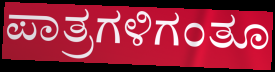
ಪಾತ್ರಗಳಿಗಂತೂ